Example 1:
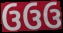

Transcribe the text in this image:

ઉઉઉ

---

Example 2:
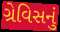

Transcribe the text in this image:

ગ્રેવિસનું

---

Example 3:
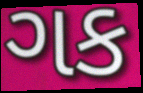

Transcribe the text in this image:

ગક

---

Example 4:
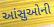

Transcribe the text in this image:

આંસુઓની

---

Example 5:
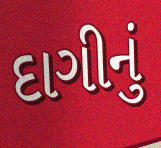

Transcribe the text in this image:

દાગીનું